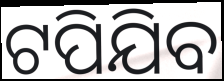
ଟପିଯିବ